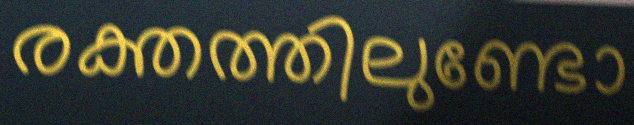
രക്തത്തിലുണ്ടോ